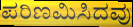
ಪರಿಣಮಿಸಿದವು